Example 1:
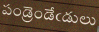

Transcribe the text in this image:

పండ్రెండేఁడులు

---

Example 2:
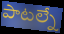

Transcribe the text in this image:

పాటల్నే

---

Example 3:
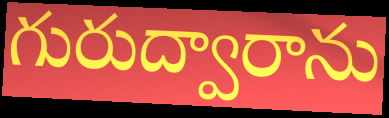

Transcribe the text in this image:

గురుద్వారాను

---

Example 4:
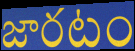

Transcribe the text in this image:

జారటం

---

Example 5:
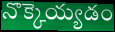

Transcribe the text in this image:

నొక్కెయ్యడం